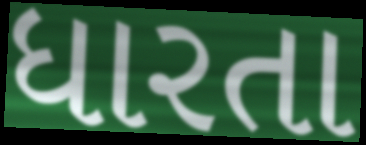
ધારતા